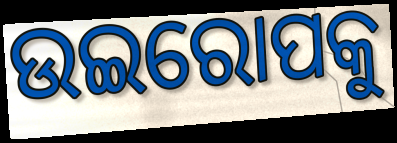
ଉଇରୋପକୁ